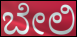
ಬೇಲಿ